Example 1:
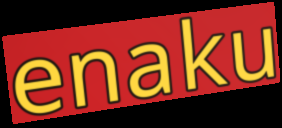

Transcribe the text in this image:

enaku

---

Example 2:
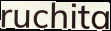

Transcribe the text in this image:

ruchita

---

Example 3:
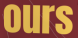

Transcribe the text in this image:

ours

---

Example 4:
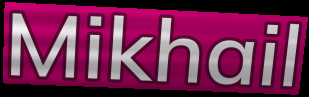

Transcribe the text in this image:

Mikhail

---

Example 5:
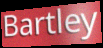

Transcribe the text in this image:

Bartley